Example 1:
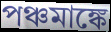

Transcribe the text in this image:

পঞ্চমাঙ্কে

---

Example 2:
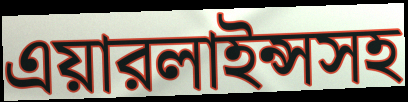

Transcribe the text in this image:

এয়ারলাইন্সসহ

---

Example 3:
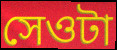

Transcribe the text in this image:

সেওটা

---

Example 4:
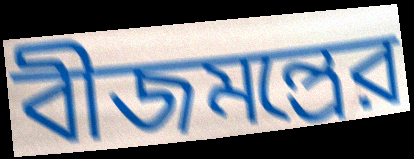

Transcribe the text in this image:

বীজমন্ত্রের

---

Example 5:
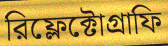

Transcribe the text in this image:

রিফ্লেক্টোগ্রাফি